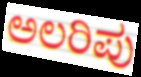
ಅಲರಿಪು